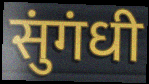
सुंगंधी